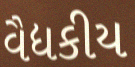
વૈદ્યકીય